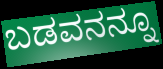
ಬಡವನನ್ನೂ